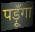
पड़ूँगा